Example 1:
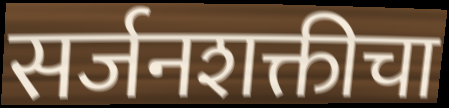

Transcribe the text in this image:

सर्जनशक्तीचा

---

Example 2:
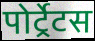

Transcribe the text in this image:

पोर्ट्रेटस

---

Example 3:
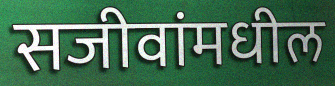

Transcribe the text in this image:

सजीवांमधील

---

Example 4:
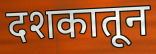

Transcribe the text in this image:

दशकातून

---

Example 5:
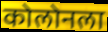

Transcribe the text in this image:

कोलोनला